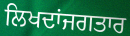
ਲਿਖਦਾਂਜਗਤਾਰ